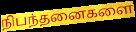
நிபந்தனைகளை